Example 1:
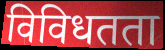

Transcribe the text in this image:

विविधतता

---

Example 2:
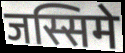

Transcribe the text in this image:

जस्सिमे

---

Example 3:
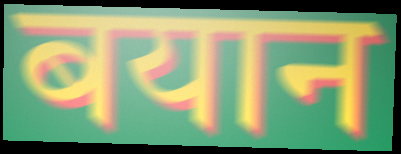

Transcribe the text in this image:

बयान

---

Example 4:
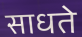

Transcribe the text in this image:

साधते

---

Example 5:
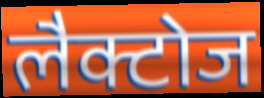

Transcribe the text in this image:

लैक्टोज